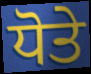
ਧੋਤੇ